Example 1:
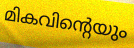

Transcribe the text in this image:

മികവിന്റെയും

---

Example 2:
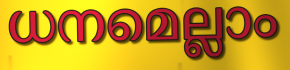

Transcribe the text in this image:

ധനമെല്ലാം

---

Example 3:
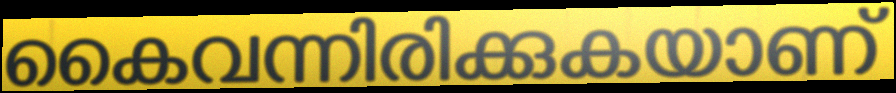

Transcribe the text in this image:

കൈവന്നിരിക്കുകയാണ്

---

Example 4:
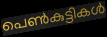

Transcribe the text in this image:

പെൺകുട്ടികൾ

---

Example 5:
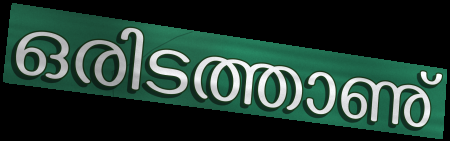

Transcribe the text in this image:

ഒരിടത്താണു്